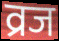
व्रज